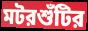
মটরশুঁটির